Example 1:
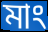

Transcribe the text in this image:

মাং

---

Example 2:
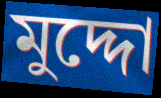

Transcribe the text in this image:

মুদ্দো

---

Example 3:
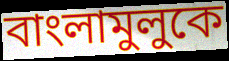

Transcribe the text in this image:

বাংলামুলুকে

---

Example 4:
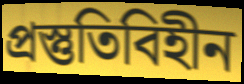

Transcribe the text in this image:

প্রস্তুতিবিহীন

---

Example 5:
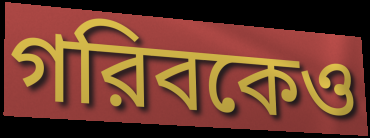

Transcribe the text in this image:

গরিবকেও